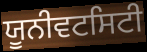
ਯੂਨੀਵਟਸਿਟੀ